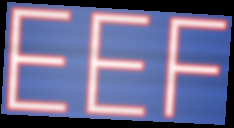
EEF